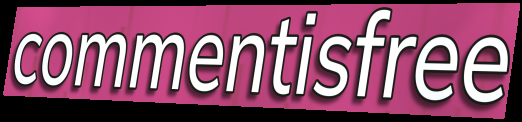
commentisfree